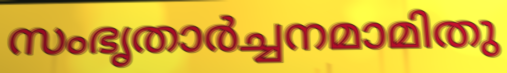
സംഭൃതാർച്ചനമാമിതു